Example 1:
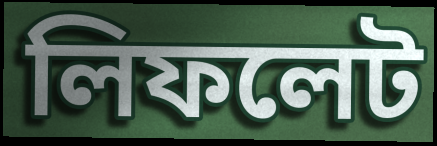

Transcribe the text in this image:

লিফলেট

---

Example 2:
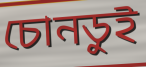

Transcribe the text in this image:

চোনডুই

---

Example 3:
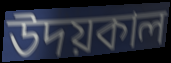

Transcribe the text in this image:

উদয়কাল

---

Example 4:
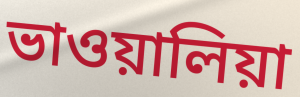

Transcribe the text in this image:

ভাওয়ালিয়া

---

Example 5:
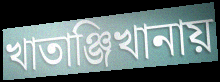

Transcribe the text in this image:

খাতাঞ্জিখানায়